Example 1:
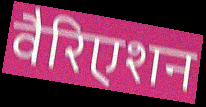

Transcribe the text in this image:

वैरिएशन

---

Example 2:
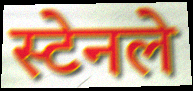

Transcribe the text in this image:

स्टेनले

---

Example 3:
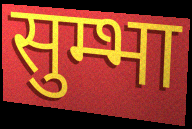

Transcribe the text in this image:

सुम्भा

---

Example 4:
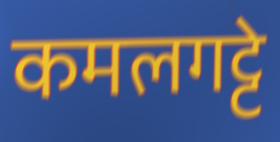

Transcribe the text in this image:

कमलगट्टे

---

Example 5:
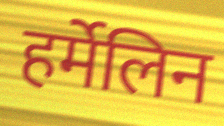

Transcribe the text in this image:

हर्मेलिन